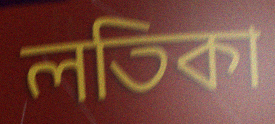
লতিকা